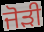
ਜੋਡ਼ੀ